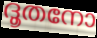
ദൂതനോ